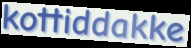
kottiddakke